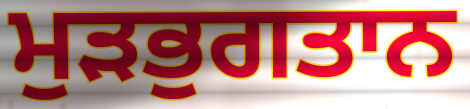
ਮੁੜਭੁਗਤਾਨ